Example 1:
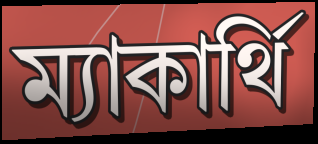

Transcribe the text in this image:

ম্যাকার্থি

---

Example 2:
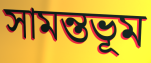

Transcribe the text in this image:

সামন্তভূম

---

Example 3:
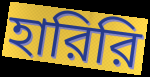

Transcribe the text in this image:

হারিরি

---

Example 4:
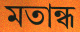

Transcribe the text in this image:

মতান্ধ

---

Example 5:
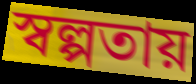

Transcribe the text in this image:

স্বল্পতায়